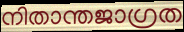
നിതാന്തജാഗ്രത